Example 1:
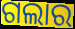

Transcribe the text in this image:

ଗଲାର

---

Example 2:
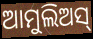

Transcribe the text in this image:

ଆମୁଲିଅସ୍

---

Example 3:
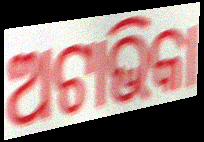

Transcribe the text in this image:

ଅଟାଭିକା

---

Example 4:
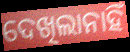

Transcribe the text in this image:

ଦେଖିଲାନାହିଁ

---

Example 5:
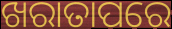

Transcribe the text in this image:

ଖରାତାପରେ